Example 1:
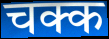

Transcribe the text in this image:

चक्‍क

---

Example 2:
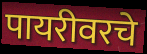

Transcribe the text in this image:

पायरीवरचे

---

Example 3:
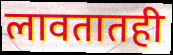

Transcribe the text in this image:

लावतातही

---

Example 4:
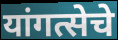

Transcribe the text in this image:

यांगत्सेचे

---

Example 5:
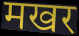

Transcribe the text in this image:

मखर